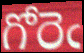
గోరెఁ